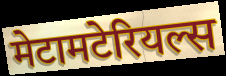
मेटामटेरियल्स